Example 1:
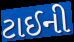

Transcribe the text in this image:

ટાઈની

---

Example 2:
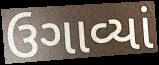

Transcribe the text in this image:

ઉગાવ્યાં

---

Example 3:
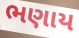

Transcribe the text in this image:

ભણાય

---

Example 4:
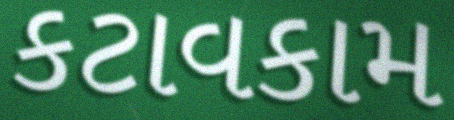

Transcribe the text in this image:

કટાવકામ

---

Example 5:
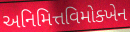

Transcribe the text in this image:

અનિમિત્તવિમોક્ખેન